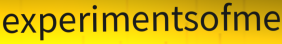
experimentsofme